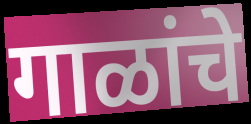
गाळांचे